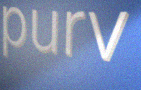
purv